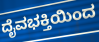
ದೈವಭಕ್ತಿಯಿಂದ